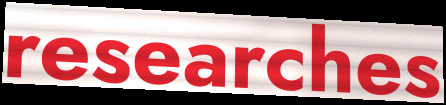
researches